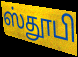
ஸ்தூபி